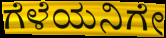
ಗೆಳೆಯನಿಗೇ